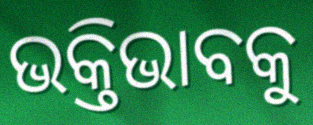
ଭକ୍ତିଭାବକୁ